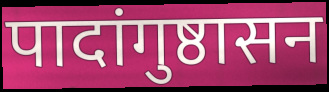
पादांगुष्ठासन